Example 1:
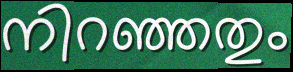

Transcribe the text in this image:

നിറഞ്ഞതും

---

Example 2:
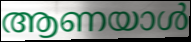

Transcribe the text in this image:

ആണയാൾ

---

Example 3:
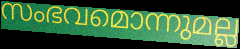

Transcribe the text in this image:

സംഭവമൊന്നുമല്ല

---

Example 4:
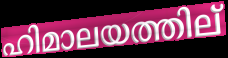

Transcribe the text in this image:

ഹിമാലയത്തില്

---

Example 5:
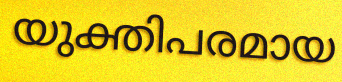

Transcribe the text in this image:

യുക്തിപരമായ